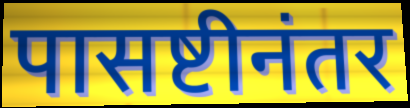
पासष्टीनंतर